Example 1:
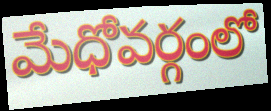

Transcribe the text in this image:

మేధోవర్గంలో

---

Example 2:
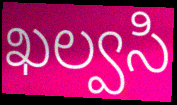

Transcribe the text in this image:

ఖల్వసి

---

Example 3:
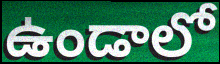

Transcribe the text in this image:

ఉండాలో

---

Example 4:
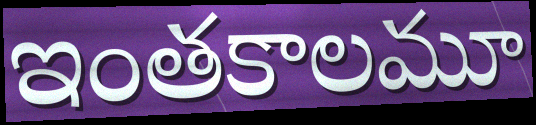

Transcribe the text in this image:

ఇంతకాలమూ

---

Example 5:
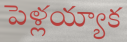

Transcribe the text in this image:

పెళ్లయ్యాక